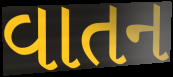
વાતન